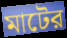
মাটের